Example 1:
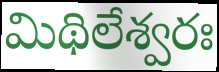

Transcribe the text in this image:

మిథిలేశ్వరః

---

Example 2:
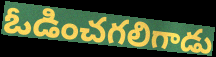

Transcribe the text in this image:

ఓడించగలిగాడు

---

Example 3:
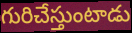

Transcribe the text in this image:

గురిచేస్తుంటాడు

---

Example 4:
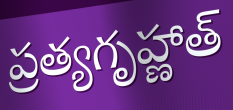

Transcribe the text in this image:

ప్రత్యగృహ్ణాత్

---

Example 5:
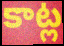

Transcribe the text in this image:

కాట్ల